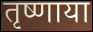
तृष्णाया